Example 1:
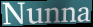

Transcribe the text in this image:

Nunna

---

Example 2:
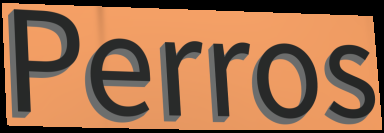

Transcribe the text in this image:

Perros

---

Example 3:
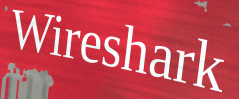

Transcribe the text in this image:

Wireshark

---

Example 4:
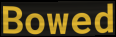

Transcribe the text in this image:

Bowed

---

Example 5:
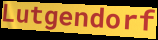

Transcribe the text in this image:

Lutgendorf